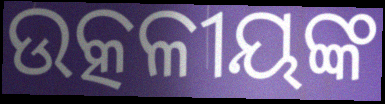
ଉତ୍କଳୀୟଙ୍କ